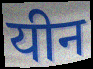
यीन